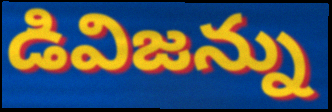
డివిజన్ను